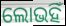
ଲୋଭହିଁ